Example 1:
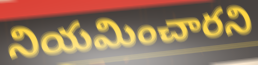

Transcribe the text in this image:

నియమించారని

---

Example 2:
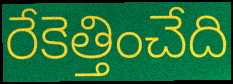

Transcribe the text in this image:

రేకెత్తించేది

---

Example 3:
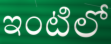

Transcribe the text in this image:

ఇంటిలో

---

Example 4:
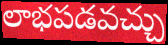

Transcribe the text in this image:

లాభపడవచ్చు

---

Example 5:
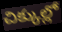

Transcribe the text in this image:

చిక్కుల్లో